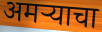
अमऱ्याचा